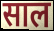
साल